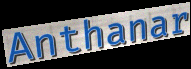
Anthanar